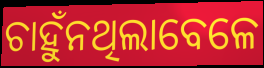
ଚାହୁଁନଥିଲାବେଳେ